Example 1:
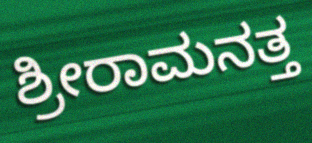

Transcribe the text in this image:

ಶ್ರೀರಾಮನತ್ತ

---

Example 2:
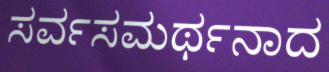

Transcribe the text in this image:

ಸರ್ವಸಮರ್ಥನಾದ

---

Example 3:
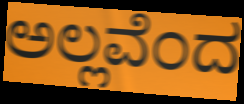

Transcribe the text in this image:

ಅಲ್ಲವೆಂದ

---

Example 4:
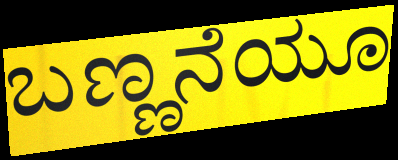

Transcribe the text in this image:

ಬಣ್ಣನೆಯೂ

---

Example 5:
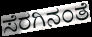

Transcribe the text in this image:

ಸೆರಗಿನಂತೆ